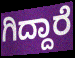
ಗಿದ್ದಾರೆ